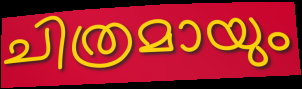
ചിത്രമായും